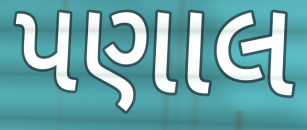
પણાલ